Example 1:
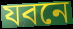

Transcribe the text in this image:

যবনে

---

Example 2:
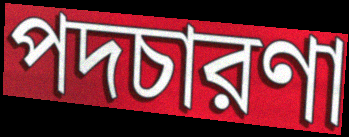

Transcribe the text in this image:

পদচারণা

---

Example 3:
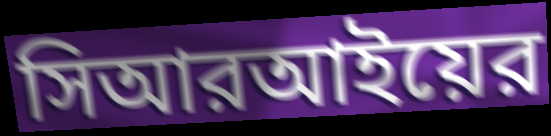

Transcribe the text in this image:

সিআরআইয়ের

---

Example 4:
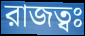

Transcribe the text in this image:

রাজত্বঃ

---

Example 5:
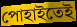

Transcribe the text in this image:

পোহাইতেই